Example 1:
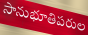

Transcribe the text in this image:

సానుభూతిపరుల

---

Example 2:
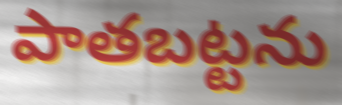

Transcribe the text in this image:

పాతబట్టను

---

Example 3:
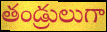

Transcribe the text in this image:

తండ్రులుగా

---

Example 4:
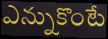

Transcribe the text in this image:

ఎన్నుకొంటే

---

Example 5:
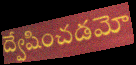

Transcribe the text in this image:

ద్వేషించడమో